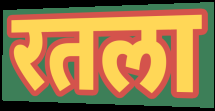
रतला